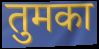
तुमका